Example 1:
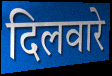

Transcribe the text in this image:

दिलवारे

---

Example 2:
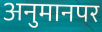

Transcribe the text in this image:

अनुमानपर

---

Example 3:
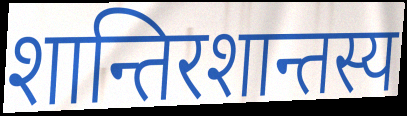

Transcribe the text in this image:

शान्तिरशान्तस्य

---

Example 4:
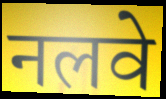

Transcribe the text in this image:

नलवे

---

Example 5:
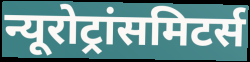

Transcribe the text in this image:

न्यूरोट्रांसमिटर्स